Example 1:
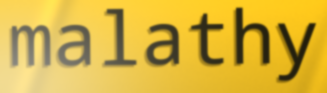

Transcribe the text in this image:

malathy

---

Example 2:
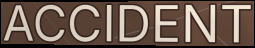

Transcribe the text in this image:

ACCIDENT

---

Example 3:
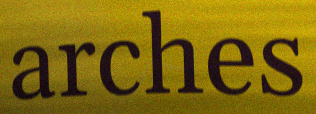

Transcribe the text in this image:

arches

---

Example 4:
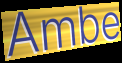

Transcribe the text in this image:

Ambe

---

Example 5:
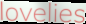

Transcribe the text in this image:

lovelies